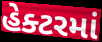
હેક્ટરમાં